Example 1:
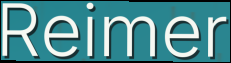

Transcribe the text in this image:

Reimer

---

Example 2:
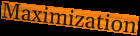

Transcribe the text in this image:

Maximization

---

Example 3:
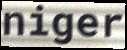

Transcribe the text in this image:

niger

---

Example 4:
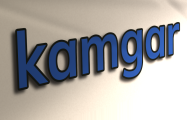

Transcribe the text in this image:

kamgar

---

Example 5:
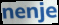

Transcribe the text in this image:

nenje